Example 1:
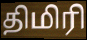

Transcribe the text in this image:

திமிரி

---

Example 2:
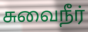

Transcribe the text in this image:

சுவைநீர்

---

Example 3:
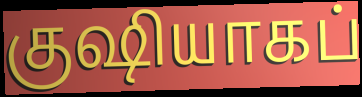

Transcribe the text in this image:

குஷியாகப்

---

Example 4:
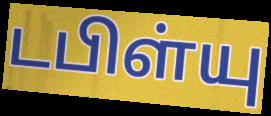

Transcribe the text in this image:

டபிள்யு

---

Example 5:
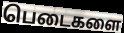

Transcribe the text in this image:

பெடைகளை